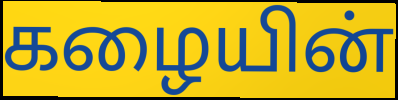
கழையின்